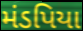
મંડપિયા